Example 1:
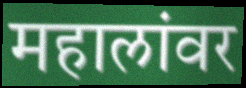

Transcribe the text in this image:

महालांवर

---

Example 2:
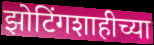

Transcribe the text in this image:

झोटिंगशाहीच्या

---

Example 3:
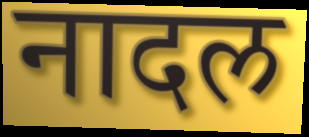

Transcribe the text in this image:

नादल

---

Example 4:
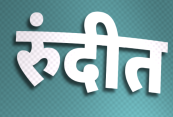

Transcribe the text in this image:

रुंदीत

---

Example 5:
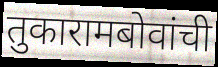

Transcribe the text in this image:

तुकारामबोवांची